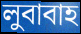
লুবাবাহ